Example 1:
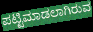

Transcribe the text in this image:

ಪಟ್ಟಿಮಾಡಲಾಗಿರುವ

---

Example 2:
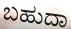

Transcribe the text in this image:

ಬಹುದಾ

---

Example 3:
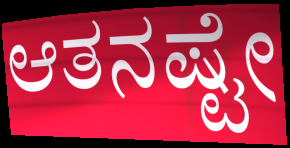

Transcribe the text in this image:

ಆತನಷ್ಟೇ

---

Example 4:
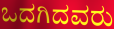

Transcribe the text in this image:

ಒದಗಿದವರು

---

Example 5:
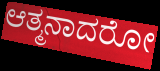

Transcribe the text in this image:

ಆತ್ಮನಾದರೋ